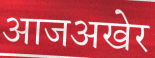
आजअखेर